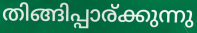
തിങ്ങിപ്പാര്ക്കുന്നു